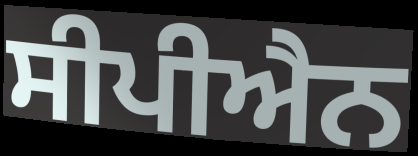
ਸੀਪੀਐਨ